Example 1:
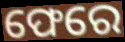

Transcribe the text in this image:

ଫେରେ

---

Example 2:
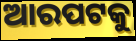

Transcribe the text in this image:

ଆରପଟକୁ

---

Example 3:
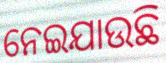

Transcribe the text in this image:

ନେଇଯାଉଛି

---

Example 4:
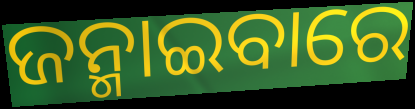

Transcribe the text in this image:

ଜନ୍ମାଇବାରେ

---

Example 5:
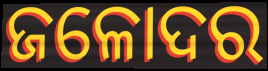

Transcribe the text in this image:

ଜଳୋଦର